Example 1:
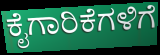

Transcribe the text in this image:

ಕೈಗಾರಿಕೆಗಳಿಗೆ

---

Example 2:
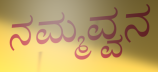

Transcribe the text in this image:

ನಮ್ಮವ್ವನ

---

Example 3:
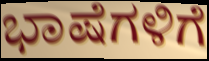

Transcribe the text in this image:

ಭಾಷೆಗಳಿಗೆ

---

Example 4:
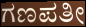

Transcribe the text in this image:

ಗಣಪತೀ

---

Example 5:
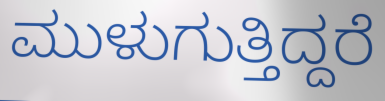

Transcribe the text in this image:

ಮುಳುಗುತ್ತಿದ್ದರೆ